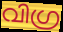
വിഗ്ര